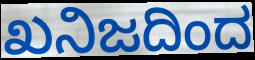
ಖನಿಜದಿಂದ